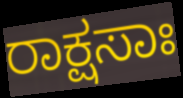
ರಾಕ್ಷಸಾಃ